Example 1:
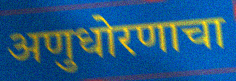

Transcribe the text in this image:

अणुधोरणाचा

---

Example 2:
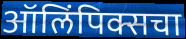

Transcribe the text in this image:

ऑलिंपिक्सचा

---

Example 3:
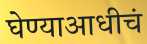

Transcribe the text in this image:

घेण्याआधीचं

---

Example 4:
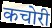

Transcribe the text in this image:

कचोरी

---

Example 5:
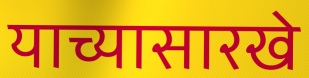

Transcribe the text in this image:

याच्यासारखे